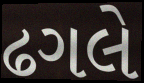
ઢગલે